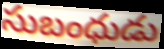
సుబంధుడు